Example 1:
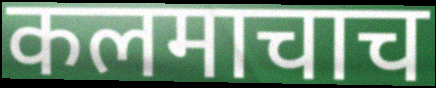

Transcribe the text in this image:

कलमाचाच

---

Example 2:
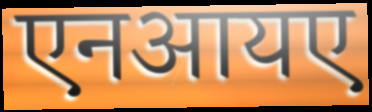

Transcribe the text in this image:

एनआयए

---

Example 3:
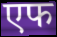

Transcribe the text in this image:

एफ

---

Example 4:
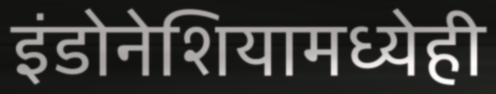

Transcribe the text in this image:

इंडोनेशियामध्येही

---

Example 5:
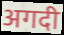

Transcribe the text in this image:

अगदी